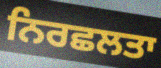
ਨਿਰਛਲਤਾ